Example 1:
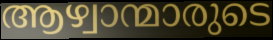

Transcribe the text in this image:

ആഴ്വാന്മാരുടെ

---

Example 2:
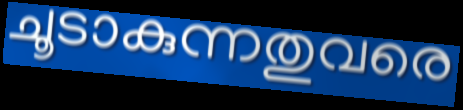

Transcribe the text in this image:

ചൂടാകുന്നതുവരെ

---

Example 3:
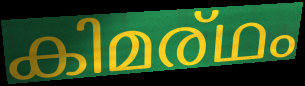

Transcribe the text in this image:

കിമര്ഥം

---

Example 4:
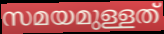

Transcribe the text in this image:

സമയമുള്ളത്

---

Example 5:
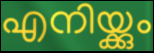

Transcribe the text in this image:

എനിയ്ക്കും